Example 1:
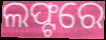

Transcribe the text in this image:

ଲଫ୍ଟରେ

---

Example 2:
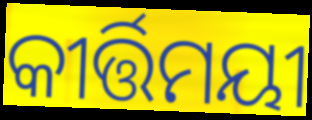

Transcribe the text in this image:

କୀର୍ତ୍ତିମୟୀ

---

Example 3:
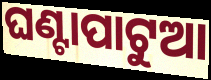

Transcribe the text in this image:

ଘଣ୍ଟାପାଟୁଆ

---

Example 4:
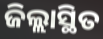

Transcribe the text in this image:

ଜିଲ୍ଲାସ୍ଥିତ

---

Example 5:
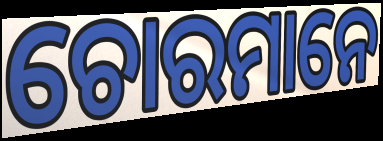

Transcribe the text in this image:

ଚୋରମାନେ